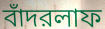
বাঁদরলাফ